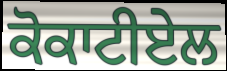
ਕੋਕਾਟੀਏਲ